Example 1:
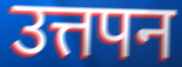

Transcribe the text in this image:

उत्तपन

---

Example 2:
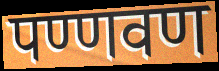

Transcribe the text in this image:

पण्णवण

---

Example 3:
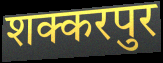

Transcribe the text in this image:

शक्करपुर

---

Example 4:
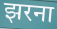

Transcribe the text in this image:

झरना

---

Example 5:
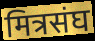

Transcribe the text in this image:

मित्रसंघ